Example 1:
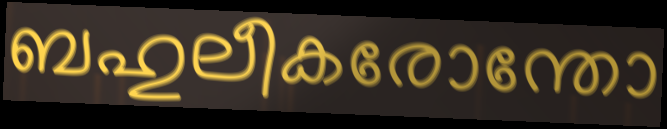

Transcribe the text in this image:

ബഹുലീകരോന്തോ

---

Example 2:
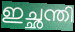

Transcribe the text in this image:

ഇച്ഛന്തി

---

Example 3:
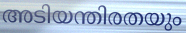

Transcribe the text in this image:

അടിയന്തിരതയും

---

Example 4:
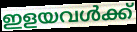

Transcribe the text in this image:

ഇളയവൾക്ക്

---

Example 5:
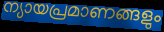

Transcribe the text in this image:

ന്യായപ്രമാണങ്ങളും